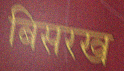
बिसरख